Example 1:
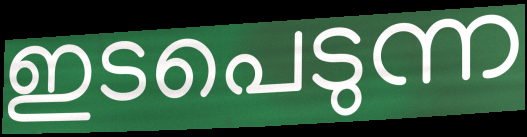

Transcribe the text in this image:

ഇടപെടുന്ന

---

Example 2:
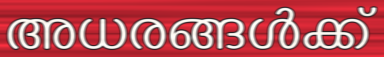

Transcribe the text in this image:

അധരങ്ങൾക്ക്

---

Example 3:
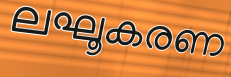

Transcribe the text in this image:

ലഘൂകരണ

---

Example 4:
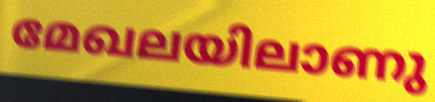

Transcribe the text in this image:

മേഖലയിലാണു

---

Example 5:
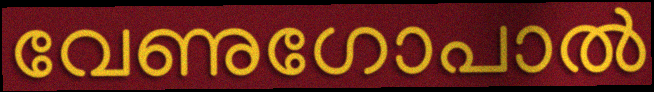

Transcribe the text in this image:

വേണുഗോപാൽ